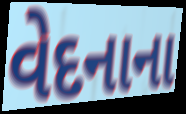
વેદનાના